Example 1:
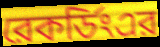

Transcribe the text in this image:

রেকর্ডিংএর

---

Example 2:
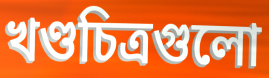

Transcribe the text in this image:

খণ্ডচিত্রগুলো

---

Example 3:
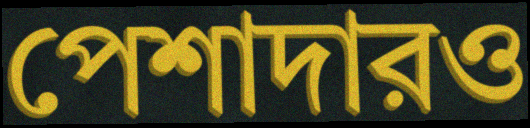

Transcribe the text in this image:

পেশাদারও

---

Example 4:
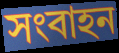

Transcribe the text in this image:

সংবাহন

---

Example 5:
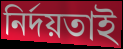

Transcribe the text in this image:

নির্দয়তাই